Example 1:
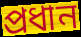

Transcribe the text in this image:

প্ৰধান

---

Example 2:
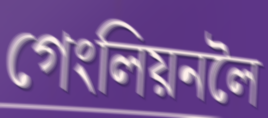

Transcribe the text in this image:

গেংলিয়নলৈ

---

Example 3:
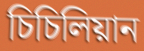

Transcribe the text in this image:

চিচিলিয়ান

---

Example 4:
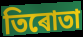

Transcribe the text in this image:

তিৰোতা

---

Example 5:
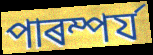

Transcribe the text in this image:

পাৰম্পৰ্য